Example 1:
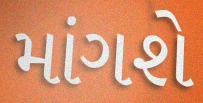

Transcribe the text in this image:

માંગશે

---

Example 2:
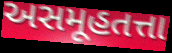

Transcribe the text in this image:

અસમૂહતત્તા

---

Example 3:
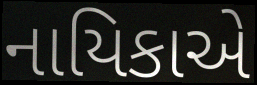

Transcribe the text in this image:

નાયિકાએ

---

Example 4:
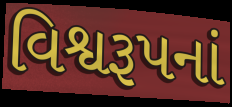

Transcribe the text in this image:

વિશ્વરૂપનાં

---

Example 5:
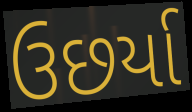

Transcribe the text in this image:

ઉછર્યા